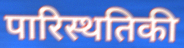
पारिस्थतिकी